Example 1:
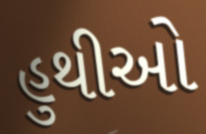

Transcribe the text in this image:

હુથીઓ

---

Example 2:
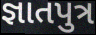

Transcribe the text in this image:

જ્ઞાતપુત્ર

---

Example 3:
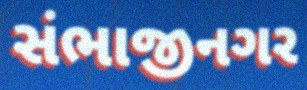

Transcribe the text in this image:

સંભાજીનગર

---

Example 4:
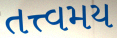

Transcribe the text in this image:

તત્ત્વમય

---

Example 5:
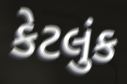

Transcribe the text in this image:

કેટલુંક